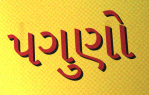
પગુણો